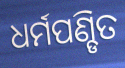
ଧର୍ମପଣ୍ଡିତ